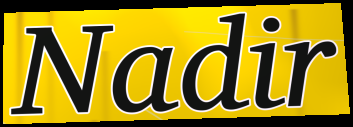
Nadir